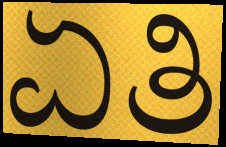
ಏತಿ